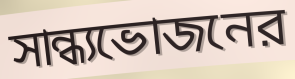
সান্ধ্যভোজনের